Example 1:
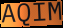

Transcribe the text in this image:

AQIM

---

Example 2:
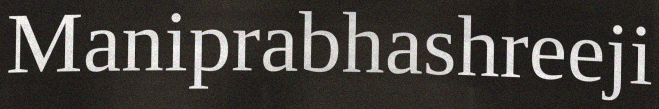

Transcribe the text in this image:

Maniprabhashreeji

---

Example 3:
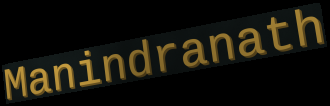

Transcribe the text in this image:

Manindranath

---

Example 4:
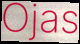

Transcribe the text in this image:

Ojas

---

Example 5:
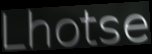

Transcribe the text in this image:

Lhotse